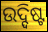
ଉଦ୍ଦିଷ୍ଟ